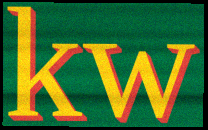
kw